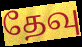
தேவு